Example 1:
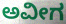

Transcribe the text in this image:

ಅವೀಗ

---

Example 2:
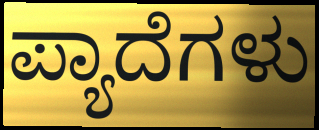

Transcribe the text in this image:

ಪ್ಯಾದೆಗಳು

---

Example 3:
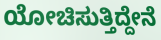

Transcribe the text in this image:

ಯೋಚಿಸುತ್ತಿದ್ದೇನೆ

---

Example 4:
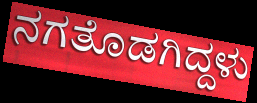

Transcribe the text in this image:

ನಗತೊಡಗಿದ್ದಳು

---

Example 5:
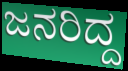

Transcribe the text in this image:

ಜನರಿದ್ದ